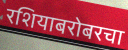
रशियाबरोबरचा